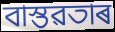
বাস্তৱতাৰ